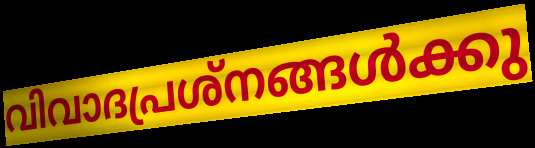
വിവാദപ്രശ്നങ്ങൾക്കു